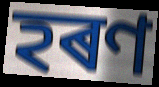
হৰণ